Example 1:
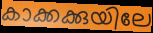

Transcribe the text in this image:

കാക്കക്കുയിലേ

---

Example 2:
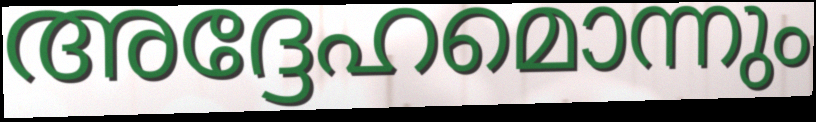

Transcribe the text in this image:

അദ്ദേഹമൊന്നും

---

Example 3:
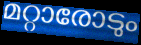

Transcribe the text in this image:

മറ്റാരോടും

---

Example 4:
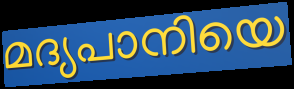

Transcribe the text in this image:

മദ്യപാനിയെ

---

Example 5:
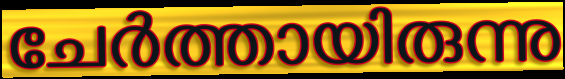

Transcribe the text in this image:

ചേർത്തായിരുന്നു